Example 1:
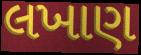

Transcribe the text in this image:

લખાણ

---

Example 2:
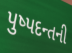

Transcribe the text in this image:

પુષ્પદન્તની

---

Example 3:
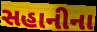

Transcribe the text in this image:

સહાનીના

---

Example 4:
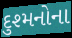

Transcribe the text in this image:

દુશ્મનોના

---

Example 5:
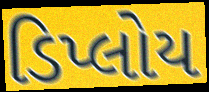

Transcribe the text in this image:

ડિપ્લોય